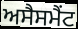
ਅਸੈਸਮੈਂਟ